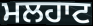
ਮਲਹਾਟ